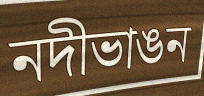
নদীভাঙন